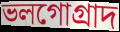
ভলগোগ্রাদ